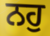
ਨਹੁ